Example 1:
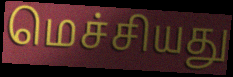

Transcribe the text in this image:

மெச்சியது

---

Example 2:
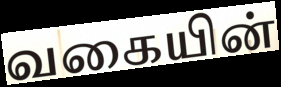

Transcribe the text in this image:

வகையின்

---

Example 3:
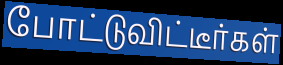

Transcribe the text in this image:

போட்டுவிட்டீர்கள்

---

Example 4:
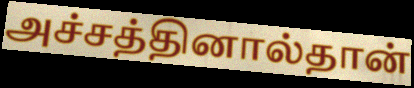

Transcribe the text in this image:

அச்சத்தினால்தான்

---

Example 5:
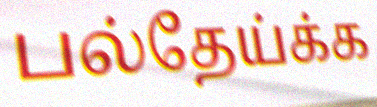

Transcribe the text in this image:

பல்தேய்க்க